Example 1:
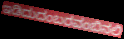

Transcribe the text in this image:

ಇಡಿದುದಂಬರವಂಬಿನಲಿ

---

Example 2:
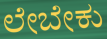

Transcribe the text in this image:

ಲೇಬೇಕು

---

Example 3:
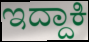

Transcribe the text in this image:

ಇದ್ದಾಕಿ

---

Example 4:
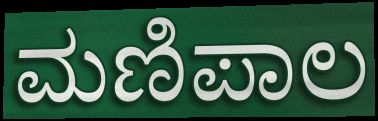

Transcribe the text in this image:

ಮಣಿಪಾಲ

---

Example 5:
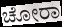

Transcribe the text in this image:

ಚೋರಾ